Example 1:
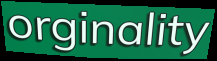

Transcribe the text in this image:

orginality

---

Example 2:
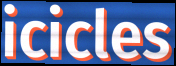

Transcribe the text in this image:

icicles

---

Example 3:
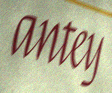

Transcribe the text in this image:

antey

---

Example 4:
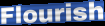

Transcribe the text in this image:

Flourish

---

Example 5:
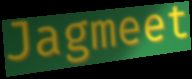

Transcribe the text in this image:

Jagmeet